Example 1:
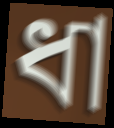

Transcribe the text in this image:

ধা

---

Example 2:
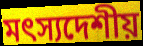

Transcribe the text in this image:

মৎস্যদেশীয়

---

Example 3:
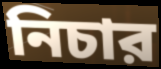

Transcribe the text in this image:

নিচার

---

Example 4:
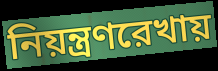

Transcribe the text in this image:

নিয়ন্ত্রণরেখায়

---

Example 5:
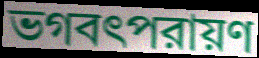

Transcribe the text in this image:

ভগবৎপরায়ণ